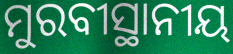
ମୁରବୀସ୍ଥାନୀୟ